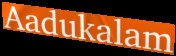
Aadukalam